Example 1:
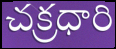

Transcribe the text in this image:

చక్రధారి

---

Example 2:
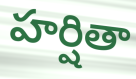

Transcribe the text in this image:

హర్షితా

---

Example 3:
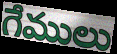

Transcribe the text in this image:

గేములు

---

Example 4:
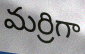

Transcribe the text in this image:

మర్రిగా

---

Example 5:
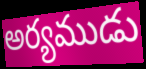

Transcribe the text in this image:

అర్యముడు